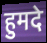
हुमदे